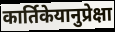
कार्तिकेयानुप्रेक्षा